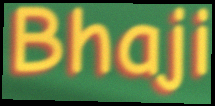
Bhaji